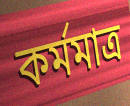
কর্মমাত্র